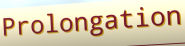
Prolongation